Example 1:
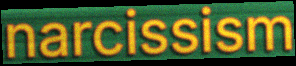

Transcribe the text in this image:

narcissism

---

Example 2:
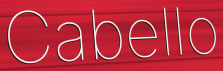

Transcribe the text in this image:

Cabello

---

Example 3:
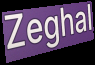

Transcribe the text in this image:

Zeghal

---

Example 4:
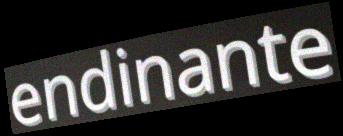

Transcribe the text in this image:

endinante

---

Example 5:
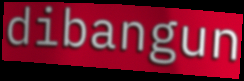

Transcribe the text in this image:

dibangun